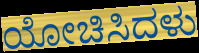
ಯೋಚಿಸಿದಳು